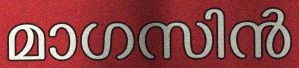
മാഗസിൻ